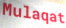
Mulaqat